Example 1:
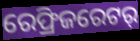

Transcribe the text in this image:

ରେଫ୍ରିଜରେଟର୍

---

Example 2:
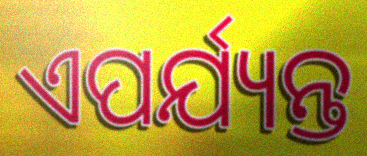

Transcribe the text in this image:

ଏପର୍ଯ୍ୟନ୍ତ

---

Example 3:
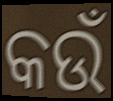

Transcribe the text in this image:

କଉଁ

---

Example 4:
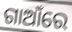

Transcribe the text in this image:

ଗାଆଁରେ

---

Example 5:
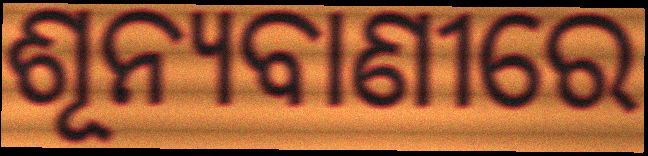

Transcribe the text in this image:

ଶୂନ୍ୟବାଣୀରେ